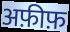
अफ़ीफ़